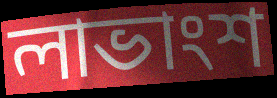
লাভাংশ